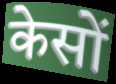
केसों